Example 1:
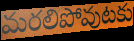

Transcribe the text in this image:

మరలిపోవుటకు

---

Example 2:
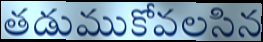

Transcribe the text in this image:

తడుముకోవలసిన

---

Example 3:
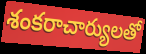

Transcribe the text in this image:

శంకరాచార్యులతో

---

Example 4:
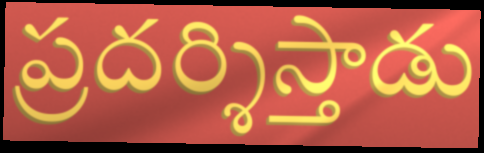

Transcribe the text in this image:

ప్రదర్శిస్తాడు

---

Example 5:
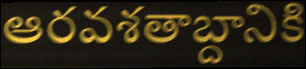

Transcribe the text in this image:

ఆరవశతాబ్దానికి